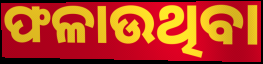
ଫଳାଉଥିବା